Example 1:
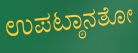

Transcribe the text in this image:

ಉಪಟ್ಠಾನತೋ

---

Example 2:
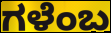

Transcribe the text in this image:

ಗಳೆಂಬ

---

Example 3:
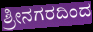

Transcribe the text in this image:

ಶ್ರೀನಗರದಿಂದ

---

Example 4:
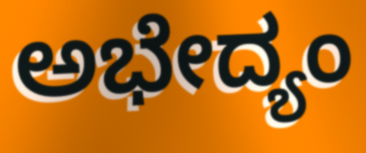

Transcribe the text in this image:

ಅಭೇದ್ಯಂ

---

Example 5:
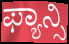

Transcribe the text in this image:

ಫ್ಯಾನ್ಸಿ